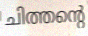
ചിത്തന്റെ